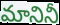
మానినీ